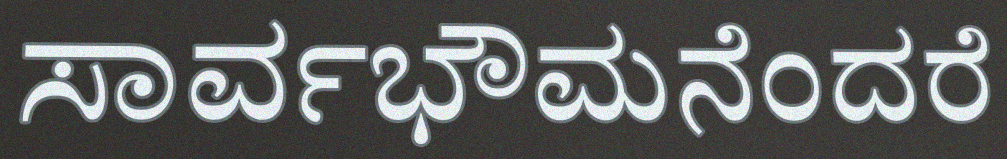
ಸಾರ್ವಭೌಮನೆಂದರೆ